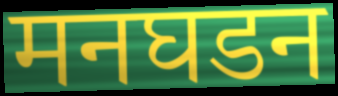
मनघडन